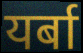
यर्बा